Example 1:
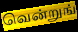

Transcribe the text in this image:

வென்றுங்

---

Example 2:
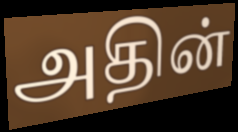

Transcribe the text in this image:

அதின்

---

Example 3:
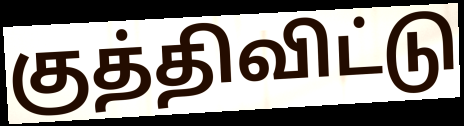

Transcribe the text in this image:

குத்திவிட்டு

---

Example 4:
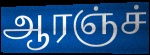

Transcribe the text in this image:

ஆரஞ்ச்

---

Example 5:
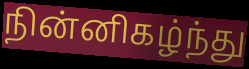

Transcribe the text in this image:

நின்னிகழ்ந்து